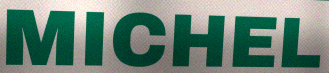
MICHEL